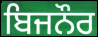
ਬਿਜਨੌਰ